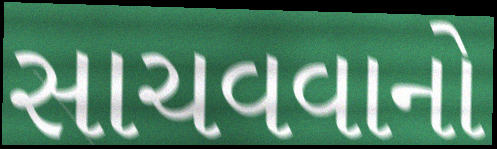
સાચવવાનો